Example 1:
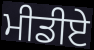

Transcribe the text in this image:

ਮੀਡੀਏ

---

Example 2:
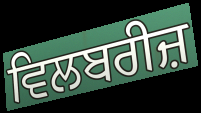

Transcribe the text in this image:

ਵਿਲਬਰੀਜ਼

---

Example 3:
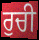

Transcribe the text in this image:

ਰੁਚੀ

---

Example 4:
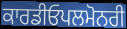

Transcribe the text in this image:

ਕਾਰਡੀਓਪਲਮੋਨਰੀ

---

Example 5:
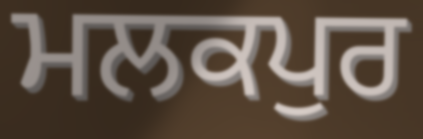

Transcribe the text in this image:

ਮਲਕਪੁਰ